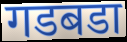
गडबडा